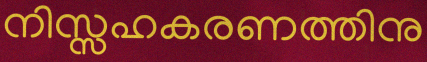
നിസ്സഹകരണത്തിനു